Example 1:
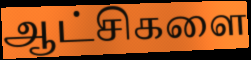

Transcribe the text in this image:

ஆட்சிகளை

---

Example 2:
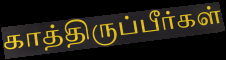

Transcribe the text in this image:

காத்திருப்பீர்கள்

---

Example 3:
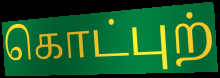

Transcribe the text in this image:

கொட்புற்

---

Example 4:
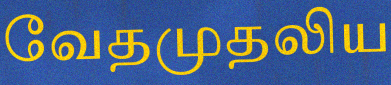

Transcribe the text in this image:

வேதமுதலிய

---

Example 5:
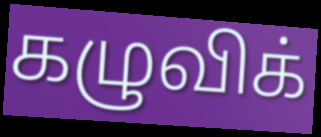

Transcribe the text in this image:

கழுவிக்